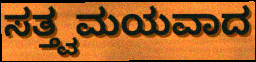
ಸತ್ತ್ವಮಯವಾದ